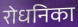
रोधनिका